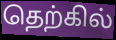
தெற்கில்